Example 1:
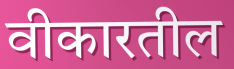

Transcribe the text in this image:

वीकारतील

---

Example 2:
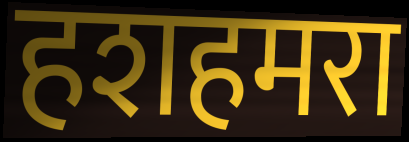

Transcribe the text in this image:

हशहमरा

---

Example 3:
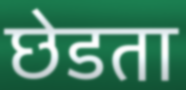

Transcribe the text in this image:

छेडता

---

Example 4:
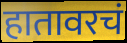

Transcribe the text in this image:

हातावरचं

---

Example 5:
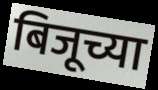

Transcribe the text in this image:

बिजूच्या